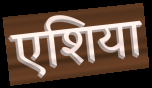
एशिया